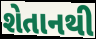
શેતાનથી